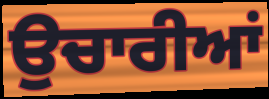
ਉਚਾਰੀਆਂ